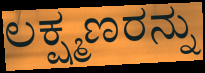
ಲಕ್ಷ್ಮಣರನ್ನು